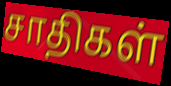
சாதிகள்